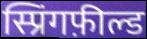
स्प्रिंगफ़ील्ड